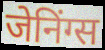
जेनिंग्स